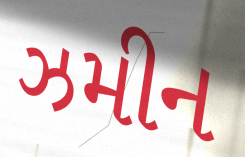
ઝમીન